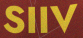
SIIV